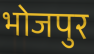
भोजपुर